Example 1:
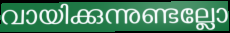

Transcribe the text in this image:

വായിക്കുന്നുണ്ടല്ലോ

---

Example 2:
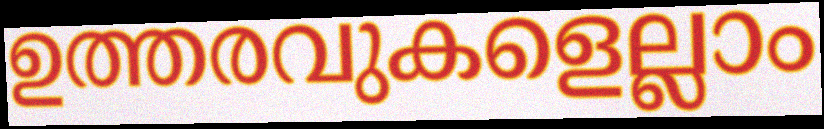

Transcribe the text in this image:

ഉത്തരവുകളെല്ലാം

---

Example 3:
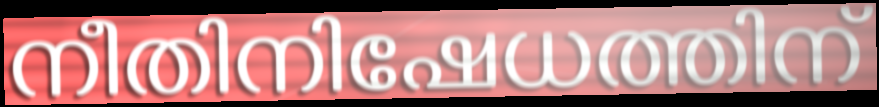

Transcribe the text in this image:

നീതിനിഷേധത്തിന്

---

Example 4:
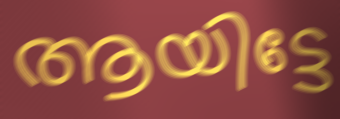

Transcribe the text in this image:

ആയിട്ടേ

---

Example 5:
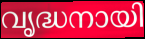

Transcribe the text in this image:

വൃദ്ധനായി